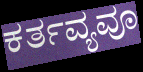
ಕರ್ತವ್ಯವೂ